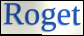
Roget